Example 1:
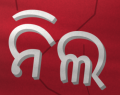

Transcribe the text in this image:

ନିଲ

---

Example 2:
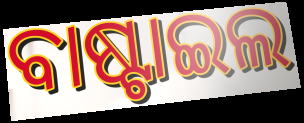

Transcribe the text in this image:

ବାଷ୍ଟାଇଲ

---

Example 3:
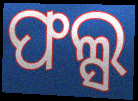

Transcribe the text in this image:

ଫଲ୍ସ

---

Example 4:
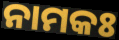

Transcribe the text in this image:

ନାମକଃ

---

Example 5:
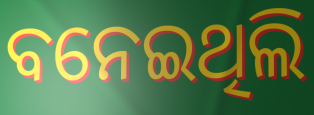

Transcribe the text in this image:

ବନେଇଥିଲି